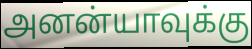
அனன்யாவுக்கு